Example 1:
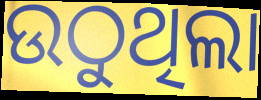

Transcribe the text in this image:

ଉଠୁଥିଲା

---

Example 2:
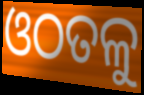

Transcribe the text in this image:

ଓଠତଳୁ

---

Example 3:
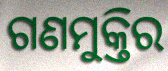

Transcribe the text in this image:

ଗଣମୁକ୍ତିର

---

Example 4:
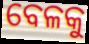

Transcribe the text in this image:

ବେଳକୁ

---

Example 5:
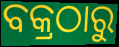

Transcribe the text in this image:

ବକ୍ରଠାରୁ